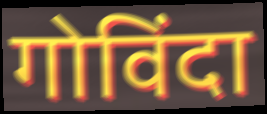
गोविंदा